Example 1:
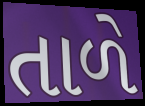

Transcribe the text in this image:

તાળે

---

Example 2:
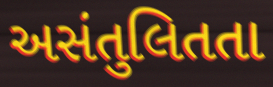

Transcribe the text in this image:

અસંતુલિતતા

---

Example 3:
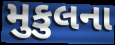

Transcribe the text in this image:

મુકુલના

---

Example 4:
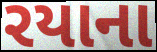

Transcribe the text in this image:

રયાના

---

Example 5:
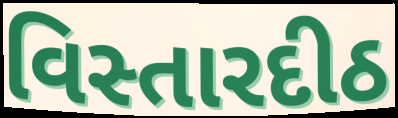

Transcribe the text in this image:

વિસ્તારદીઠ